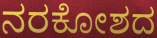
ನರಕೋಶದ